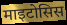
माइटोसिस